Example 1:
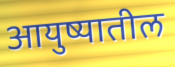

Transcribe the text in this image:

आयुष्यातील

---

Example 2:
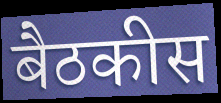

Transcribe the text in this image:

बैठकीस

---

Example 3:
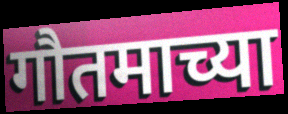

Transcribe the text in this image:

गौतमाच्या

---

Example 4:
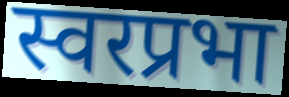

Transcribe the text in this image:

स्वरप्रभा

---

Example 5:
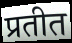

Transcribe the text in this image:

प्रतीत